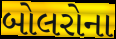
બોલરોના